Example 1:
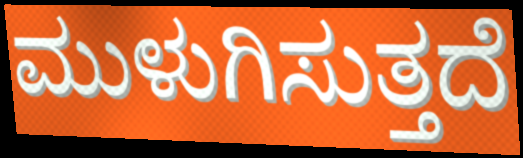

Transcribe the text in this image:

ಮುಳುಗಿಸುತ್ತದೆ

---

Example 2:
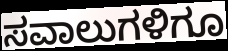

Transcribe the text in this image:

ಸವಾಲುಗಳಿಗೂ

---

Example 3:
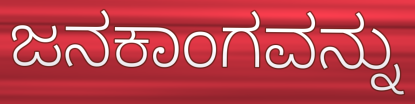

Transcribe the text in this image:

ಜನಕಾಂಗವನ್ನು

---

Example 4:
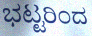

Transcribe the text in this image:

ಭಟ್ಟರಿಂದ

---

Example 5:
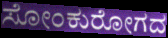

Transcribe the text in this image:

ಸೋಂಕುರೋಗದ